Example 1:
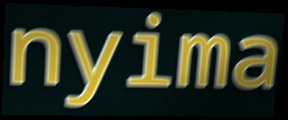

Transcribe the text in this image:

nyima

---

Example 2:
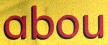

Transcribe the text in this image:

abou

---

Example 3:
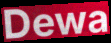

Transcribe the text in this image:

Dewa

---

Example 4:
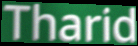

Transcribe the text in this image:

Tharid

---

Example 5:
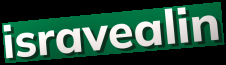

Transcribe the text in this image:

isravealin